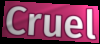
Cruel